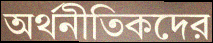
অর্থনীতিকদের